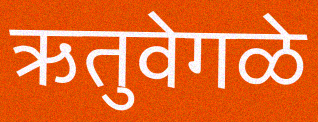
ऋतुवेगळे